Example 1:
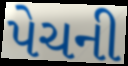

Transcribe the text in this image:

પેચની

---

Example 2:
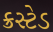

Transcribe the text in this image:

ક્રસ્ટેડ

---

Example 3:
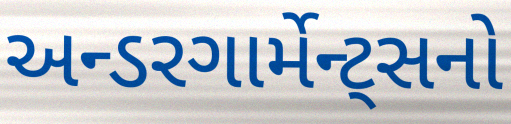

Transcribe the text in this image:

અન્ડરગાર્મેન્ટ્સનો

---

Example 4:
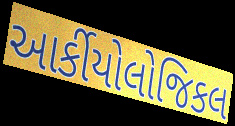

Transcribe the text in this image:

આર્કીયોલોજિકલ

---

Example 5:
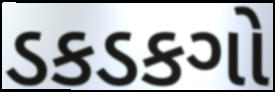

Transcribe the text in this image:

ડકડકગો